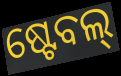
ଷ୍ଟେବଲ୍